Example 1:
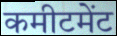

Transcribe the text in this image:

कमीटमेंट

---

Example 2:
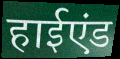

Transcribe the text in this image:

हाईएंड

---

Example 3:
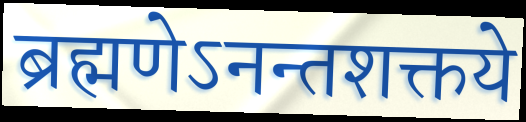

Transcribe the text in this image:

ब्रह्मणेऽनन्तशक्तये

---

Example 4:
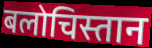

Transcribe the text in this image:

बलोचिस्तान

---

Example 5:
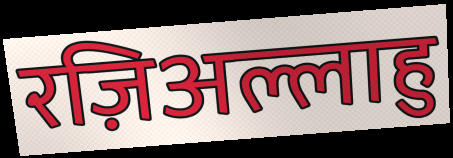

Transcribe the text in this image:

रज़िअल्लाहु